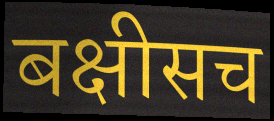
बक्षीसच